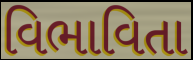
વિભાવિતા